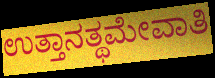
ಉತ್ತಾನತ್ಥಮೇವಾತಿ